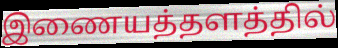
இணையத்தளத்தில்